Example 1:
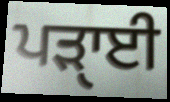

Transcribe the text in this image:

ਪੜਾੑਈ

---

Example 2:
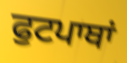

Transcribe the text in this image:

ਫੁਟਪਾਥਾਂ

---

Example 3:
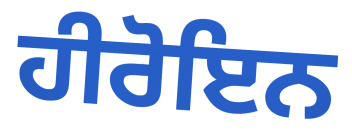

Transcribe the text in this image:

ਹੀਰੋਇਨ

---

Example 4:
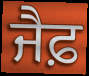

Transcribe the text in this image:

ਜੈਫ਼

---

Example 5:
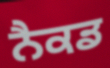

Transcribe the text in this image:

ਨੈਕਡ